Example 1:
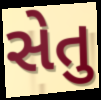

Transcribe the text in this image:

સેતુ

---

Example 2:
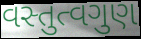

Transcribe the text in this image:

વસ્તુત્વગુણ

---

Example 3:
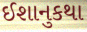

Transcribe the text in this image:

ઈશાનુકથા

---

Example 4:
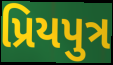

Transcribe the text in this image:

પ્રિયપુત્ર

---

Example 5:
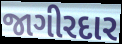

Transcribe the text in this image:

જાગીરદાર